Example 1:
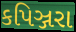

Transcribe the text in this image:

કપિઞ્જરા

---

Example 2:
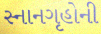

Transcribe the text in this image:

સ્નાનગૃહોની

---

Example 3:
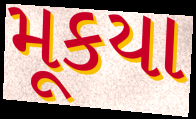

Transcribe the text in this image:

મૂકયા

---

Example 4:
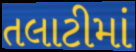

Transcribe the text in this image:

તલાટીમાં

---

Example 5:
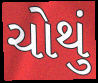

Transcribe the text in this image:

ચોથું